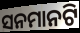
ସନମାନଟି